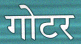
गोटर